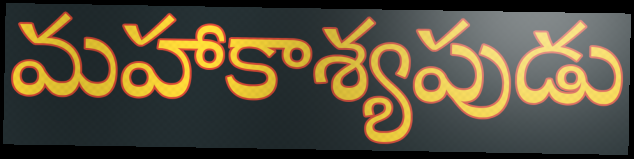
మహాకాశ్యపుడు